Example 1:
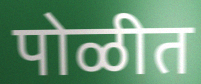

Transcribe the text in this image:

पोळीत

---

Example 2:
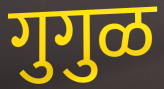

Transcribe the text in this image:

गुगुळ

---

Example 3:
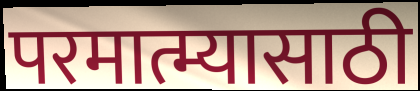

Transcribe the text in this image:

परमात्म्यासाठी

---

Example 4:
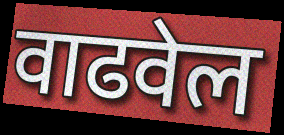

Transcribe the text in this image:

वाढवेल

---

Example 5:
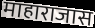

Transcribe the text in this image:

माहाराजास